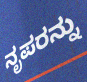
ನೃಪರನ್ನು